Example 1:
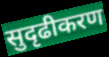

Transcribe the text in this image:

सुदृढीकरण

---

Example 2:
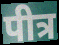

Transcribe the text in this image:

पीत्र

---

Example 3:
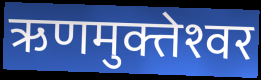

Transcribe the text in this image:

ऋणमुक्तेश्वर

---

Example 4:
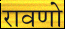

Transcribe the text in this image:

रावणो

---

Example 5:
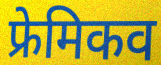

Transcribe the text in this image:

फ्रेमिकव